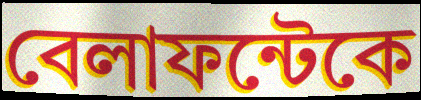
বেলাফন্টেকে